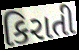
કિરાતી